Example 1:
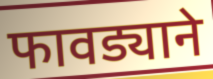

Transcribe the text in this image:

फावड्याने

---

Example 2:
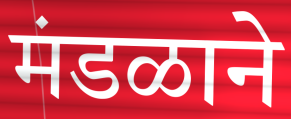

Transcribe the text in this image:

मंडळाने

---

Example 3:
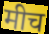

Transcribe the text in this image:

मीच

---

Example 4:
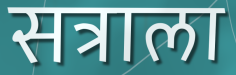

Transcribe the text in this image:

सत्राला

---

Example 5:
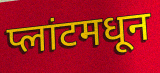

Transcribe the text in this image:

प्लांटमधून